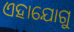
ଏହାଯୋଗୁ